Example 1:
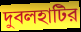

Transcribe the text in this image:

দুবলহাটির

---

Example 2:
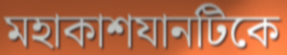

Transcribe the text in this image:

মহাকাশযানটিকে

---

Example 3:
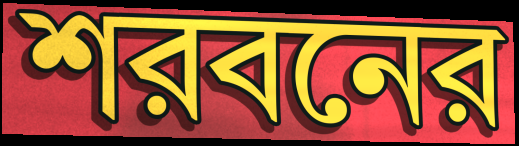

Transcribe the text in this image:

শরবনের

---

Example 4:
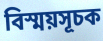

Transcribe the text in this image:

বিস্ময়সূচক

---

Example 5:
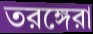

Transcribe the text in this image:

তরঙ্গেরা